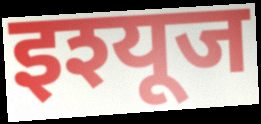
इश्यूज